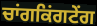
ਚਾਂਗਕਿਂਗਟੇਂਗ